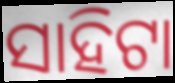
ସାହିଟା